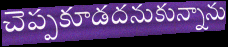
చెప్పకూడదనుకున్నాను